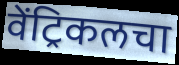
वेंट्रिकलचा